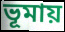
ভূমায়